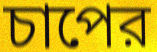
চাপের